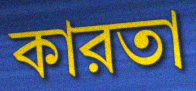
কারতা